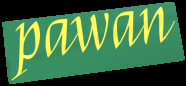
pawan